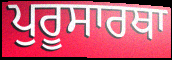
ਪੁਰੂਸਾਰਥਾ